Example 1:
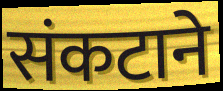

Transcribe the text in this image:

संकटाने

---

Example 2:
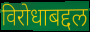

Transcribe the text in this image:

विरोधाबद्दल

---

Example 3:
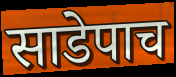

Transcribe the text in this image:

साडेपाच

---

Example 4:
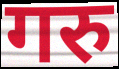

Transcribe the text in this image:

गरु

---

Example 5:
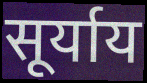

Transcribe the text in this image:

सूर्याय